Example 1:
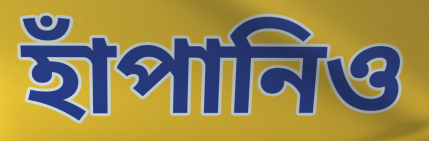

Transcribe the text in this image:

হাঁপানিও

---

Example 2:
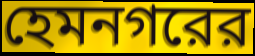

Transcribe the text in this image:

হেমনগরের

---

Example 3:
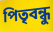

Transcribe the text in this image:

পিতৃবন্ধু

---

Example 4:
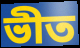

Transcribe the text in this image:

ভীত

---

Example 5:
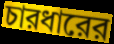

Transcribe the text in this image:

চারধারের